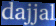
dajjal